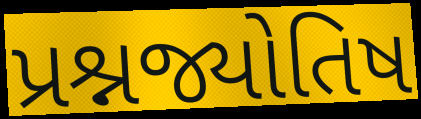
પ્રશ્નજ્યોતિષ